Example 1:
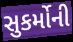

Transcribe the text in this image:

સુકર્મોની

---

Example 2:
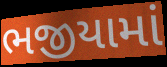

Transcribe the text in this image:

ભજીયામાં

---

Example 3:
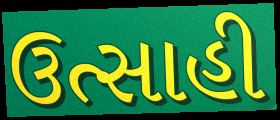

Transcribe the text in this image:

ઉત્સાહી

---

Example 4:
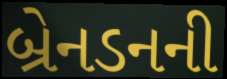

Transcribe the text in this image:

બ્રેનડનની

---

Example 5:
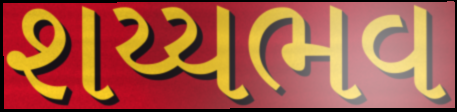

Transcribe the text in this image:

શય્યભવ